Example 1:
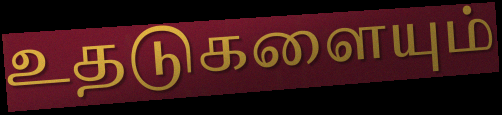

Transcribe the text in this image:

உதடுகளையும்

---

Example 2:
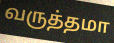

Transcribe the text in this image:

வருத்தமா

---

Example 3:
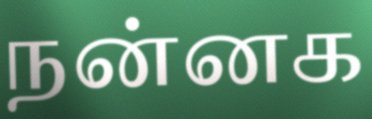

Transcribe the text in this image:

நன்னக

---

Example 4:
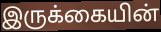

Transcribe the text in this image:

இருக்கையின்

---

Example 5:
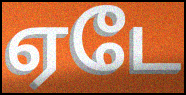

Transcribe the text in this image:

ஏடே